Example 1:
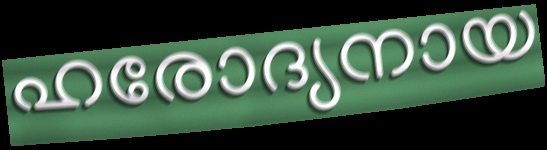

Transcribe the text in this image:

ഹരോദ്യനായ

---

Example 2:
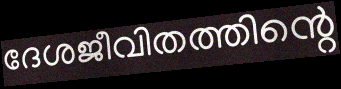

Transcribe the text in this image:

ദേശജീവിതത്തിന്റെ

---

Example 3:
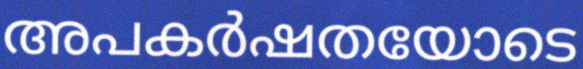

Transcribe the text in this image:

അപകർഷതയോടെ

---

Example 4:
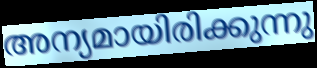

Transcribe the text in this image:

അന്യമായിരിക്കുന്നു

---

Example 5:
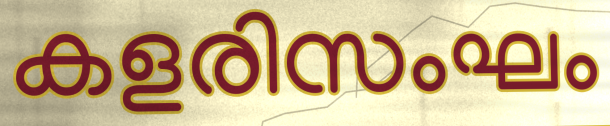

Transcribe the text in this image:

കളരിസംഘം